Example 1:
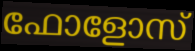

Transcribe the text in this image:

ഫോളോസ്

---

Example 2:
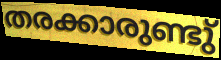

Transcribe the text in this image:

തരക്കാരുണ്ടു്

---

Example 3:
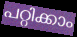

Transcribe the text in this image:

പറ്റിക്കാം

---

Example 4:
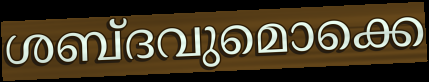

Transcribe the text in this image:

ശബ്ദവുമൊക്കെ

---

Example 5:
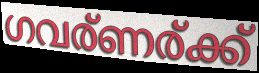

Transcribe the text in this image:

ഗവര്ണര്ക്ക്